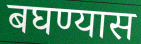
बघण्यास